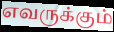
எவருக்கும்